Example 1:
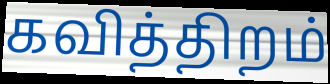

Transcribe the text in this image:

கவித்திறம்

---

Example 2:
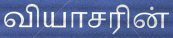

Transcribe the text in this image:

வியாசரின்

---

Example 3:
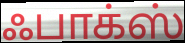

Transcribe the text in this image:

ஃபாக்ஸ்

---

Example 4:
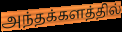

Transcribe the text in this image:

அந்தக்களத்தில்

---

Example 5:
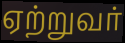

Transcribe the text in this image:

ஏற்றுவர்